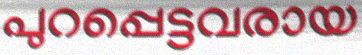
പുറപ്പെട്ടവരായ